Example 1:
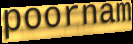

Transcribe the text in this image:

poornam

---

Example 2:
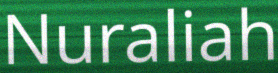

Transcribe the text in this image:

Nuraliah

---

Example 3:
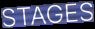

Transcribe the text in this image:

STAGES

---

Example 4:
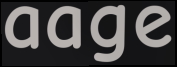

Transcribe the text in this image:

aage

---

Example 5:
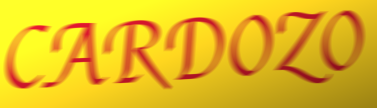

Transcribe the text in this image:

CARDOZO